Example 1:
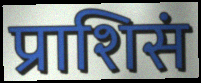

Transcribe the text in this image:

प्राशिसं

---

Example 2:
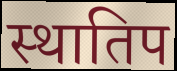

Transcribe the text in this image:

स्थातिप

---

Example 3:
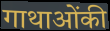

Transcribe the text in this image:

गाथाओंकी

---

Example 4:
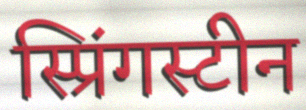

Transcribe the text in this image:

स्प्रिंगस्टीन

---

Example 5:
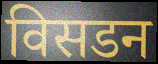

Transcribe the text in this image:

विसडन